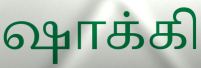
ஷாக்கி